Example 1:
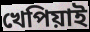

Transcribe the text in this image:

খেপিয়াই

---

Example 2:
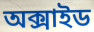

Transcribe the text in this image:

অক্সাইড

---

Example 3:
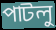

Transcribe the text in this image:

পাটলু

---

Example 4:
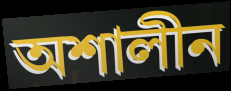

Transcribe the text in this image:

অশালীন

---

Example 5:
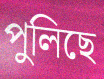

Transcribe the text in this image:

পুলিছে